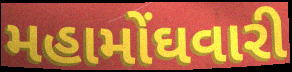
મહામોંઘવારી